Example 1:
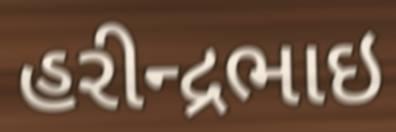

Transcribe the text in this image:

હરીન્દ્રભાઇ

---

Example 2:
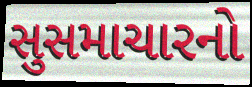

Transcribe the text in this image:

સુસમાચારનો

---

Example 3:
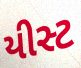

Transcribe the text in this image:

યીસ્ટ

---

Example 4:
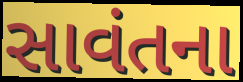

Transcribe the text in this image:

સાવંતના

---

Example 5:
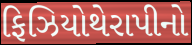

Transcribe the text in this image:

ફિઝિયોથેરાપીનો